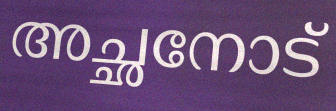
അച്ഛനോട്